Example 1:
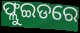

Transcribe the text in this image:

ଫ୍ଲୁଇଡରେ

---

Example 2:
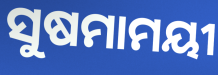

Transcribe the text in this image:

ସୁଷମାମୟୀ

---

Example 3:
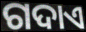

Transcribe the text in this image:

ଗଦାଏ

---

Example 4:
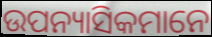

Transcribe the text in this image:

ଉପନ୍ୟାସିକମାନେ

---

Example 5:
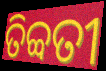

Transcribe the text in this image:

ତିବ୍ବତୀ